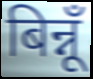
बिन्नूँ